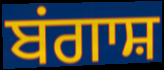
ਬਂਗਾਸ਼